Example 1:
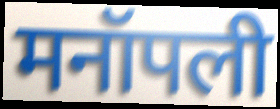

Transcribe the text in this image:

मनॉपली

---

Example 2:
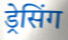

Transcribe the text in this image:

ड्रेसिंग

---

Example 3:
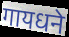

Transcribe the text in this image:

गायधने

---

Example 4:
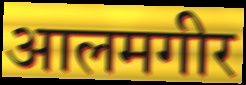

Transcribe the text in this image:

आलमगीर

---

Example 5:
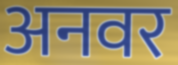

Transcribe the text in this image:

अनवर